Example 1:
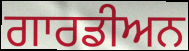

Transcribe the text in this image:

ਗਾਰਡੀਅਨ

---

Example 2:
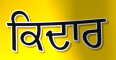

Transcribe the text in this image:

ਕਿਦਾਰ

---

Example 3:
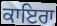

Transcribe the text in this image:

ਕਾਇਰਾ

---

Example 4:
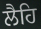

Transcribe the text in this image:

ਲੈਹਿ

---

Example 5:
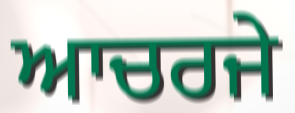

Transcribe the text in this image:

ਆਚਰਜੇ